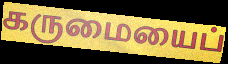
கருமையைப்